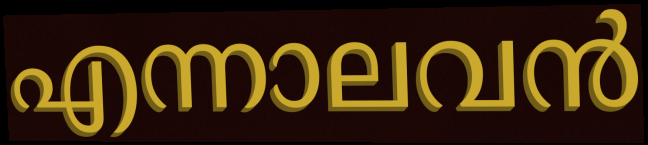
എന്നാലവൻ